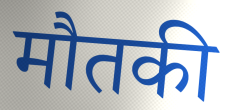
मौतकी